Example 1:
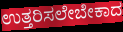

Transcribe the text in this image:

ಉತ್ತರಿಸಲೇಬೇಕಾದ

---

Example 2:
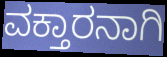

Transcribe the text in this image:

ವಕ್ತಾರನಾಗಿ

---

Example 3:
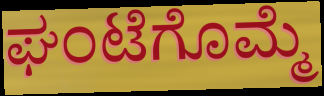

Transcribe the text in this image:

ಘಂಟೆಗೊಮ್ಮೆ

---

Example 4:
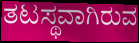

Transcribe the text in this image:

ತಟಸ್ಥವಾಗಿರುವ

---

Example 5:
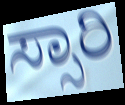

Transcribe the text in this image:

ಸ್ಸಾರಿ